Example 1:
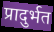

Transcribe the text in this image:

प्रादुर्भत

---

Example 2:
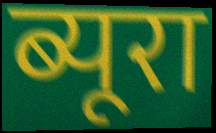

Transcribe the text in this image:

ब्यूरा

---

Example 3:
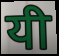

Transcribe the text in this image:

यी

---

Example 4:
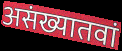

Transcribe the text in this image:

असंख्यातवां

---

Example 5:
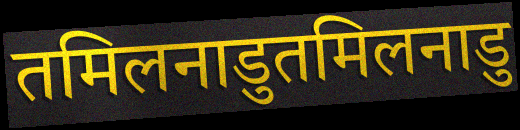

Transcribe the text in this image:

तमिलनाडुतमिलनाडु